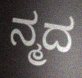
ನ್ಮದ